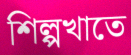
শিল্পখাতে